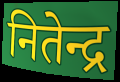
नितेन्द्र